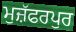
ਮੁਜ਼ੱਫਰਪੁਰ